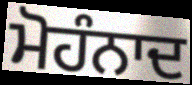
ਮੋਹੰਨਾਦ